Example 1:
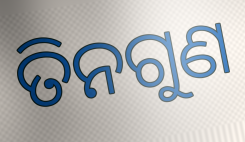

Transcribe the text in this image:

ତିନଗୁଣ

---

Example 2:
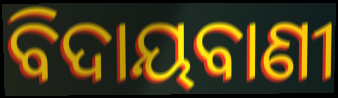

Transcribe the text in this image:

ବିଦାୟବାଣୀ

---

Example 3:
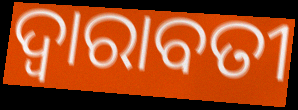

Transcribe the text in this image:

ଦ୍ଵାରାବତୀ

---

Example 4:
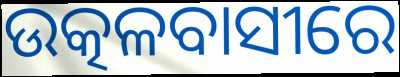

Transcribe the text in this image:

ଉତ୍କଳବାସୀରେ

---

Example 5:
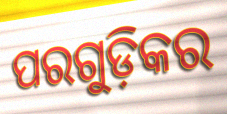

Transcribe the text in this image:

ପରଗୁଡ଼ିକର